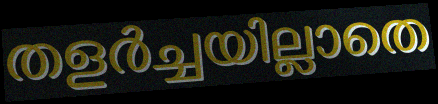
തളർച്ചയില്ലാതെ